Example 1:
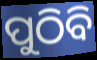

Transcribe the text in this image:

ପୁଠିବି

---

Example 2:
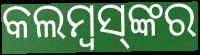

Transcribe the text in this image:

କଲମ୍ୱସ୍‌ଙ୍କର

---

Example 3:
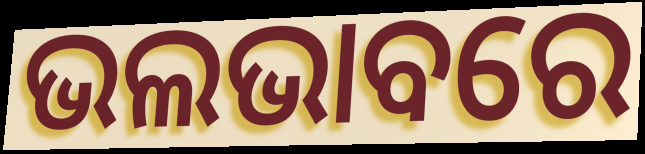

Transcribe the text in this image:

ଭଲଭାବରେ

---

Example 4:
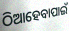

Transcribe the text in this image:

ଠିଆହେବାପାଇଁ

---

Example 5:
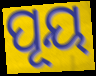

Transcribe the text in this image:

ପୂୟ